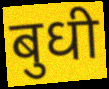
बुधी